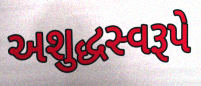
અશુદ્ધસ્વરૂપે